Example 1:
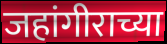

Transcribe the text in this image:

जहांगीराच्या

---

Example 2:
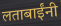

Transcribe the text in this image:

लताबाईंनी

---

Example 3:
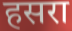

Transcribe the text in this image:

हसरा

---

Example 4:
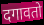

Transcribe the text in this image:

दगावतो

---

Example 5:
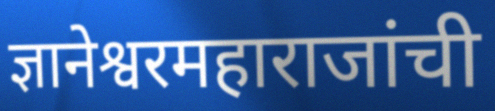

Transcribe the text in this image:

ज्ञानेश्वरमहाराजांची